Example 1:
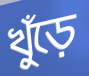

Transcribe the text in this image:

খুঁড়ে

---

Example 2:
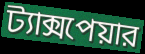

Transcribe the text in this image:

ট্যাক্সপেয়ার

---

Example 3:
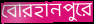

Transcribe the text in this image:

বোরহানপুরে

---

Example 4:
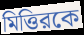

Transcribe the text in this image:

মিত্তিরকে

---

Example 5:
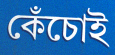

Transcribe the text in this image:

কেঁচোই